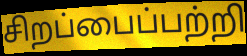
சிறப்பைப்பற்றி